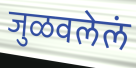
जुळवलेलं